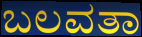
ಬಲವತಾ